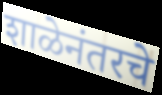
शाळेनंतरचे